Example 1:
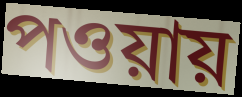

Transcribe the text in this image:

পওয়ায়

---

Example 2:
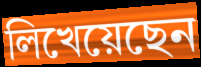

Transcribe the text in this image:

লিখেয়েছেন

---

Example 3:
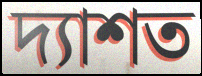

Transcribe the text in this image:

দ্যাশত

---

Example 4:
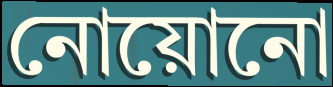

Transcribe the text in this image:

নোয়োনো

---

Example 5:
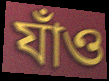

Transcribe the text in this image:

যাঁও